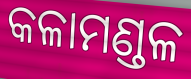
କଳାମଣ୍ଡଳ